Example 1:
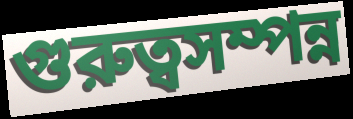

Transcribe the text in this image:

গুরুত্বসম্পন্ন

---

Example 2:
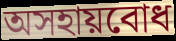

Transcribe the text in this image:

অসহায়বোধ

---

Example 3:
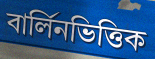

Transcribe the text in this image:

বার্লিনভিত্তিক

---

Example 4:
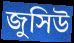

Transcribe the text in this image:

জুসিউ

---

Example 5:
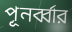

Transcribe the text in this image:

পূনর্ব্বার